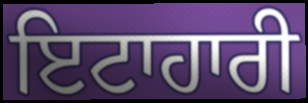
ਇਟਾਹਾਰੀ